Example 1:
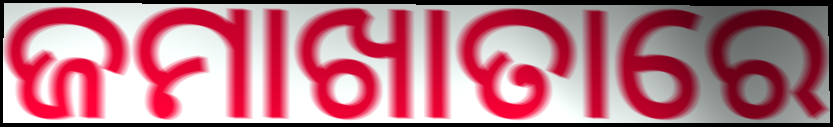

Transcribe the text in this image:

ଜମାଖାତାରେ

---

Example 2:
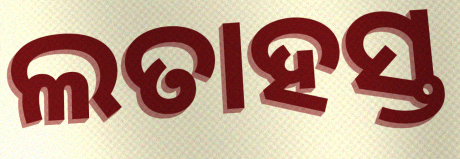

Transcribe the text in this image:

ଲତାହସ୍ତ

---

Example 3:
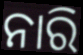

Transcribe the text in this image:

ନାରି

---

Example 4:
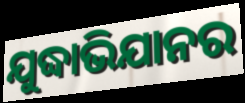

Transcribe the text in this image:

ଯୁଦ୍ଧାଭିଯାନର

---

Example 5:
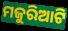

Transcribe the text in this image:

ମଜୁରିଆଟି